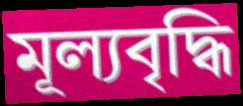
মূল্যবৃদ্ধি